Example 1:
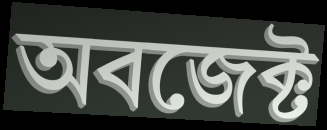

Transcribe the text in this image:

অবজেক্ট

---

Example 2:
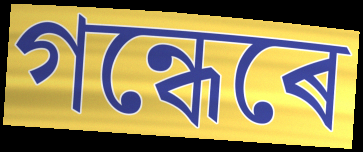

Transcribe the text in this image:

গন্ধেৰে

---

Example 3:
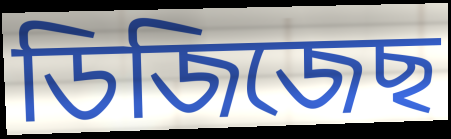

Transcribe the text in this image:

ডিজিজেছ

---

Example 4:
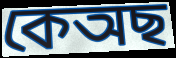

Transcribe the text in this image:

কেঅছ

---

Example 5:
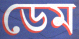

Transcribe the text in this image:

ডেম